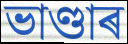
ভাণ্ডাৰ